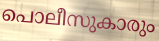
പൊലീസുകാരും